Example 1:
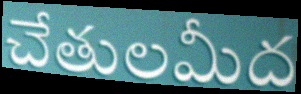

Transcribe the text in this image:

చేతులమీద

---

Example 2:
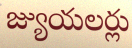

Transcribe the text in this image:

జ్యుయలర్లు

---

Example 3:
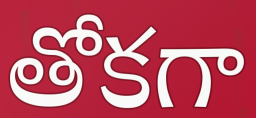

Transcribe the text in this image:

తోకగా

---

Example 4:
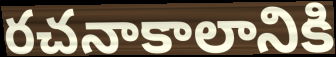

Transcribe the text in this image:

రచనాకాలానికి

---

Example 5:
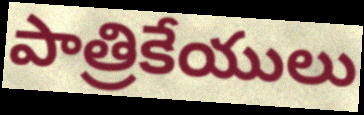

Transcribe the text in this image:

పాత్రికేయులు